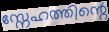
സ്നേഹത്തിന്റെ